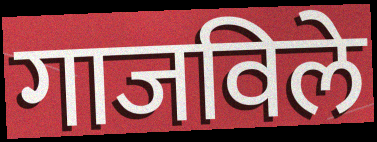
गाजविले